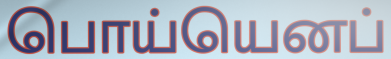
பொய்யெனப்